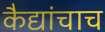
कैद्यांचाच